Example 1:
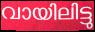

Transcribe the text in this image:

വായിലിട്ടു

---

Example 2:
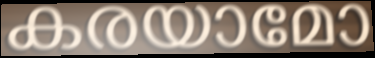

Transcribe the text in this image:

കരയാമോ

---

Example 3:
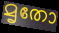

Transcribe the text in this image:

മൃതോ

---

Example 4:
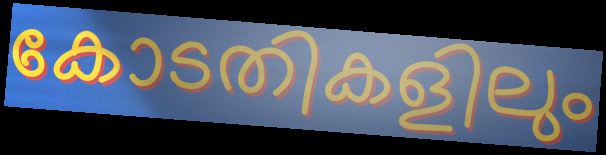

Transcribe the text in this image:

കോടതികളിലും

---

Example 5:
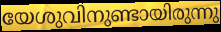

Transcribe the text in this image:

യേശുവിനുണ്ടായിരുന്നു